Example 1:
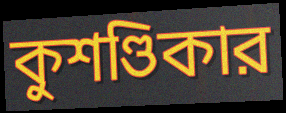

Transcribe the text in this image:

কুশণ্ডিকার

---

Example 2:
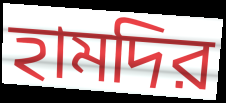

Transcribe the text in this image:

হামদির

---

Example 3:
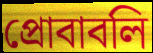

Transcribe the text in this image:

প্রোবাবলি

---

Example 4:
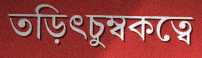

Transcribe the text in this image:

তড়িৎচুম্বকত্বে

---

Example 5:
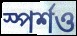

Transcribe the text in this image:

স্পর্শও